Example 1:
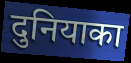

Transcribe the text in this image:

दुनियाका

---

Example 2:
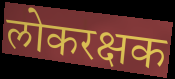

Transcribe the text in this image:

लोकरक्षक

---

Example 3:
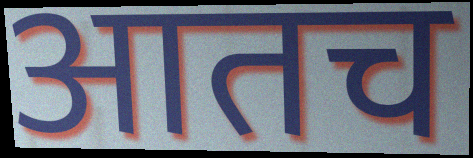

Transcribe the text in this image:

आतच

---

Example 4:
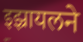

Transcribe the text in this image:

इझ्रायलने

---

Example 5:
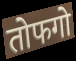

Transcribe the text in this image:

तोफगो